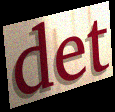
det